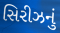
સિરીઝનું